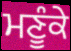
ਮਣੂੰਕੇ